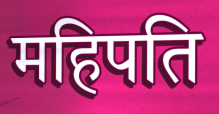
महिपति